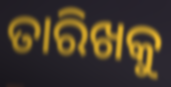
ତାରିଖକୁ